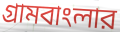
গ্রামবাংলার